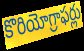
కొరియోగ్రాఫర్లు